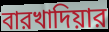
বারখাদিয়ার